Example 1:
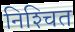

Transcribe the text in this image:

निश्चित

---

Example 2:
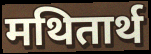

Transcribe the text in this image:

मथितार्थ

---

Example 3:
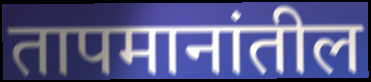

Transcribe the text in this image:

तापमानांतील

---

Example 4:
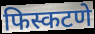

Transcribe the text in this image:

फिस्कटणे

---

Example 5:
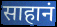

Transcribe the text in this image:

साहानं